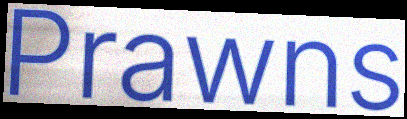
Prawns